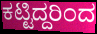
ಕಟ್ಟಿದ್ದರಿಂದ